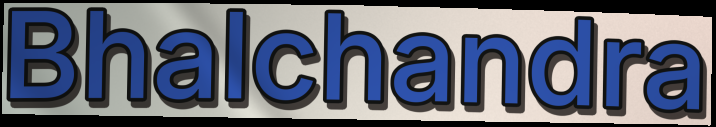
Bhalchandra